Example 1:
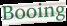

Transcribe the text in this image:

Booing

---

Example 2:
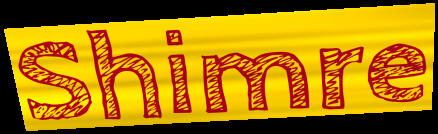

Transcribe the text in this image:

Shimre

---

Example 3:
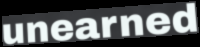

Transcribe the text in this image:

unearned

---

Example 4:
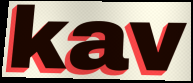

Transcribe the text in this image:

kav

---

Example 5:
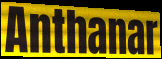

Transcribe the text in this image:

Anthanar